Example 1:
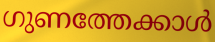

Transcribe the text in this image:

ഗുണത്തേക്കാൾ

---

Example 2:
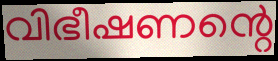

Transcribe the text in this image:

വിഭീഷണന്റെ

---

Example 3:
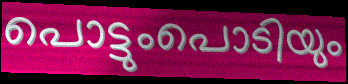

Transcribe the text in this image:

പൊട്ടുംപൊടിയും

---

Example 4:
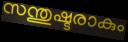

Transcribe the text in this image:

സന്തുഷ്ടരാകും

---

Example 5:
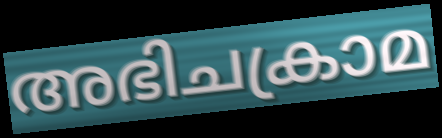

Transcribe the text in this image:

അഭിചക്രാമ